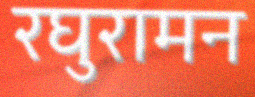
रघुरामन